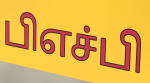
பிஎச்பி